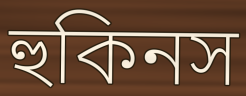
হুকিনস